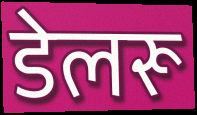
डेलरू